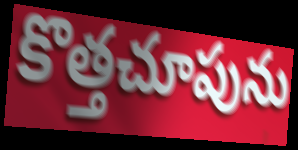
కొత్తచూపును